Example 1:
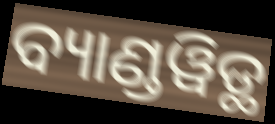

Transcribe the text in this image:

ବ୍ୟାଣ୍ଡୱିଡ୍ଥ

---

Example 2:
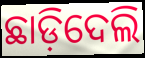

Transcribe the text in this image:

ଛାଡ଼ିଦେଲି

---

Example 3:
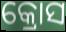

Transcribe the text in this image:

କ୍ରୋସ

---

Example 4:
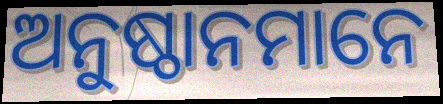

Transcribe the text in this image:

ଅନୁଷ୍ଠାନମାନେ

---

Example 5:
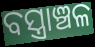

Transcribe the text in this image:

ବସ୍ତ୍ରାଞ୍ଚଳ